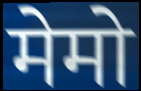
मेमो